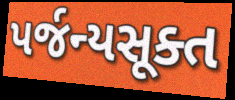
પર્જન્યસૂક્ત